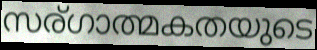
സര്ഗാത്മകതയുടെ